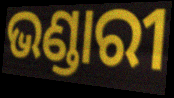
ଭଣ୍ଡାରୀ